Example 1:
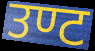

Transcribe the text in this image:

उण्ट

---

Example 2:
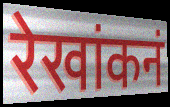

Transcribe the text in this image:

रेखांकनं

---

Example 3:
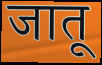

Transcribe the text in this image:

जातू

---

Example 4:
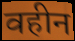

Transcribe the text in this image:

वहीन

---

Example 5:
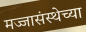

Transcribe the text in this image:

मज्जासंस्थेच्या